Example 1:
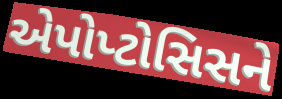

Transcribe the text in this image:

એપોપ્ટોસિસને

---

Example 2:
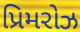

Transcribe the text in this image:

પ્રિમરોઝ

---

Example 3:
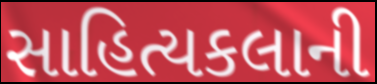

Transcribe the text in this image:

સાહિત્યકલાની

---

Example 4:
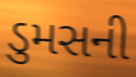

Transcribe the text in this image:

ડુમસની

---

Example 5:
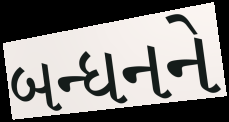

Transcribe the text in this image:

બન્ધનને